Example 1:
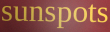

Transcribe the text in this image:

sunspots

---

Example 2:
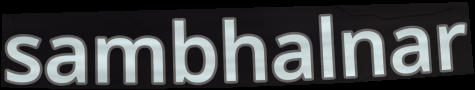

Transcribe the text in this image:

sambhalnar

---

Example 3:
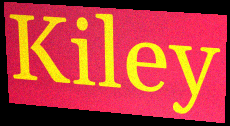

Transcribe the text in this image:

Kiley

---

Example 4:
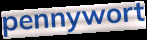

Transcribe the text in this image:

pennywort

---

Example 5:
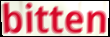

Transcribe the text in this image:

bitten